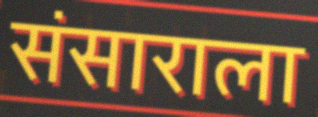
संसाराला